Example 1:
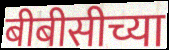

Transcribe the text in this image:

बीबीसीच्या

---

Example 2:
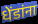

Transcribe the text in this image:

धेंडांना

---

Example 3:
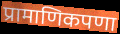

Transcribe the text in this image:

प्रामाणिकपणा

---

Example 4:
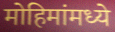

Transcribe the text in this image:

मोहिमांमध्ये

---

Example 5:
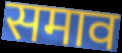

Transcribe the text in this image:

समाव